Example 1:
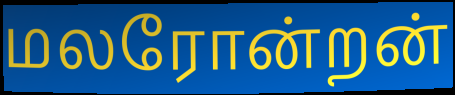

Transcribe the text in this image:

மலரோன்றன்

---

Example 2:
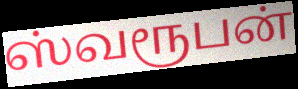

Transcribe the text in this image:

ஸ்வரூபன்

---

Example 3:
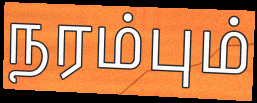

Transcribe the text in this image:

நரம்பும்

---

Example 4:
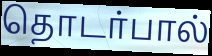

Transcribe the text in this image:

தொடர்பால்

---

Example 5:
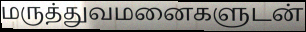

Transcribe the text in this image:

மருத்துவமனைகளுடன்